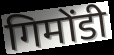
गिमोंडी